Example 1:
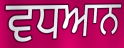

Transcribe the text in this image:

ਵਧਆਨ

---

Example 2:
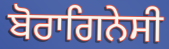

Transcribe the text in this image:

ਬੋਰਾਗਿਨੇਸੀ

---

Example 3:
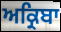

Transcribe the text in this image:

ਅਕ੍ਰਿਬਾ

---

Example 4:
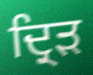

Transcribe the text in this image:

ਦ੍ਰਿਡ਼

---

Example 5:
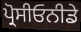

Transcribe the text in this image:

ਪ੍ਰੋਸੀਓਨੀਡੇ